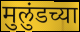
मुलुंडच्या